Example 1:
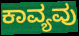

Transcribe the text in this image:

ಕಾವ್ಯವು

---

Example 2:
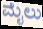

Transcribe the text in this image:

ಮೈಲು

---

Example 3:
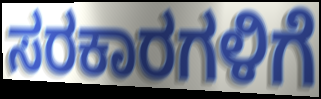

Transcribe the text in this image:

ಸರಕಾರಗಳಿಗೆ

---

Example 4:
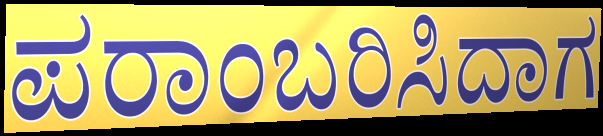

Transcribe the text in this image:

ಪರಾಂಬರಿಸಿದಾಗ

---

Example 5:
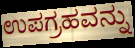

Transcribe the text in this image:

ಉಪಗ್ರಹವನ್ನು